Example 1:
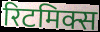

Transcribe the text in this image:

रिटमिक्स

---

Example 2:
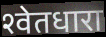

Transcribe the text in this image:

श्वेतधारा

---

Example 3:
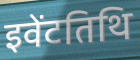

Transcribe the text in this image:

इवेंटतिथि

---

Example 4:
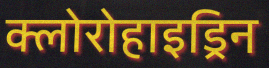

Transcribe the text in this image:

क्लोरोहाइड्रिन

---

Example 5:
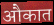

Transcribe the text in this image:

औकात